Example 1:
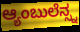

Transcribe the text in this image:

ಆ್ಯಂಬುಲೆನ್ಸ್ನ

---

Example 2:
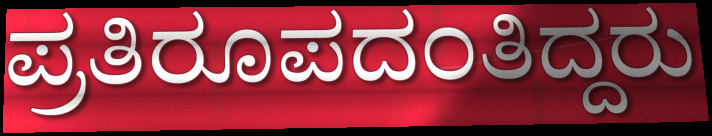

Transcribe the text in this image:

ಪ್ರತಿರೂಪದಂತಿದ್ದರು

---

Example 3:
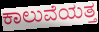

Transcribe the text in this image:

ಕಾಲುವೆಯತ್ತ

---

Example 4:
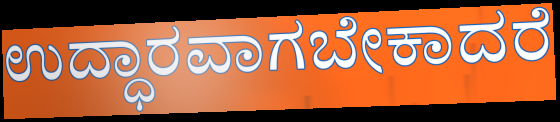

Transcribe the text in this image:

ಉದ್ಧಾರವಾಗಬೇಕಾದರೆ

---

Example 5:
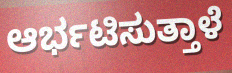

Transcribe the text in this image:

ಆರ್ಭಟಿಸುತ್ತಾಳೆ